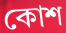
কোশ